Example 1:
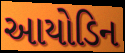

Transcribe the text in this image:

આયોડિન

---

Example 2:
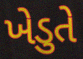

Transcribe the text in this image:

ખેડુતે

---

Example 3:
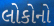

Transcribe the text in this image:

લોકોનો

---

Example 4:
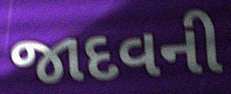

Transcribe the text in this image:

જાદવની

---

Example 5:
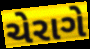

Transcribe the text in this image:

ચેરાગે